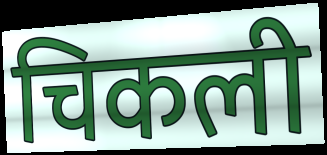
चिकली